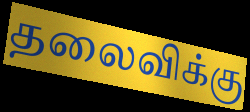
தலைவிக்கு